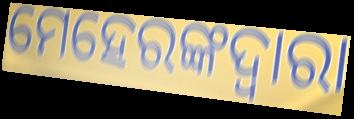
ମେହେରଙ୍କଦ୍ଵାରା